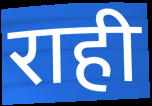
राही